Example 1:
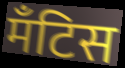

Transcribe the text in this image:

मँटिस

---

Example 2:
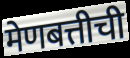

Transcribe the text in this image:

मेणबत्तीची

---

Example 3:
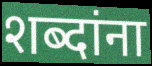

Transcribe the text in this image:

शब्दांना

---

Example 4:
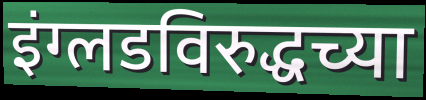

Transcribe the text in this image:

इंग्लडविरुद्धच्या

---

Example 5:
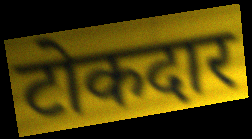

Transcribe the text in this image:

टोकदार